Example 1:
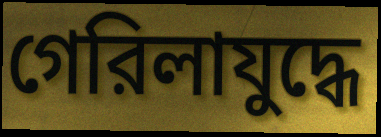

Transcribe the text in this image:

গেরিলাযুদ্ধে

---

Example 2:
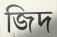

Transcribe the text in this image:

জিদ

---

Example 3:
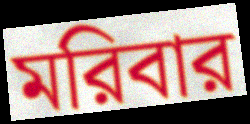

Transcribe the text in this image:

মরিবার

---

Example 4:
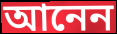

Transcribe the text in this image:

আনেন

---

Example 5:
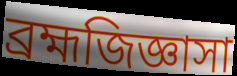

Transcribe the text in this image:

ব্রহ্মজিজ্ঞাসা